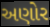
અણોર